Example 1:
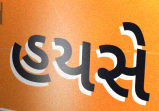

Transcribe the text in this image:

હયસે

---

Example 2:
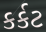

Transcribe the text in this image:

કર્કટ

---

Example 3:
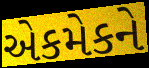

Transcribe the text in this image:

એકમેકને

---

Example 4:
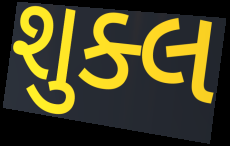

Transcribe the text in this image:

શુક્લ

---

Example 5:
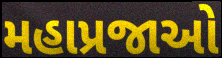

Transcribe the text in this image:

મહાપ્રજાઓ